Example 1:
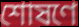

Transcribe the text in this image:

শোষণে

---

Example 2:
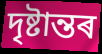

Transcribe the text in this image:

দৃষ্টান্তৰ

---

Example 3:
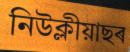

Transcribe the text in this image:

নিউক্লীয়াছৰ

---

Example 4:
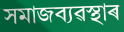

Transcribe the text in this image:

সমাজব্যৱস্থাৰ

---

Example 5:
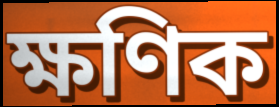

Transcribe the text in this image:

ক্ষণিক